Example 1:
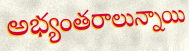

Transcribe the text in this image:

అభ్యంతరాలున్నాయి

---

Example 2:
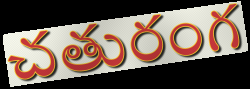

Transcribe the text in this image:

చతురంగ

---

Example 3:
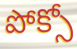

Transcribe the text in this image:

పోక్సో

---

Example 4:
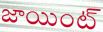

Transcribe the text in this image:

జాయింట్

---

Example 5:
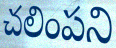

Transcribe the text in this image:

చలింపని